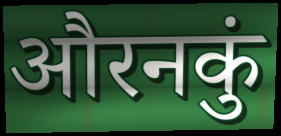
औरनकुं